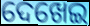
ଦେଖେଇ